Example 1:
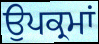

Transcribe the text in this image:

ਉਪਕ੍ਰਮਾਂ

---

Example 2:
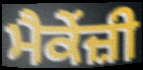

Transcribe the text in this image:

ਮੈਕੇਂਜ਼ੀ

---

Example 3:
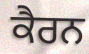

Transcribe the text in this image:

ਕੈਰਨ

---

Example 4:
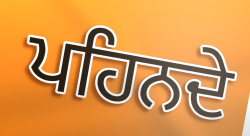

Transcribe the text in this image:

ਪਹਿਨਦੇ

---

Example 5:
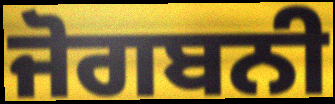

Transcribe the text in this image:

ਜੋਗਬਨੀ